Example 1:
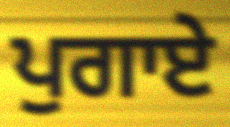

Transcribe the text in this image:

ਪੁਗਾਏ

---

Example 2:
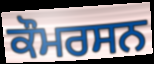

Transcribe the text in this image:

ਕੌਮਰਸਨ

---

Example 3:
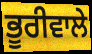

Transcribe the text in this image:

ਭੂਰੀਵਾਲੇ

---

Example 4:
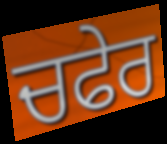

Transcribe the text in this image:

ਚਫੇਰ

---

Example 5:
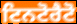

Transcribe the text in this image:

ਟਿਨਟੋਰੈਟੋ